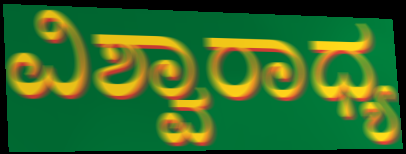
ವಿಶ್ವಾರಾಧ್ಯ